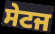
ਸੇਟਜ